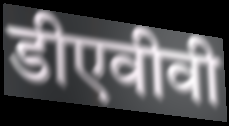
डीएवीवी